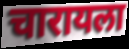
चारायला